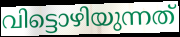
വിട്ടൊഴിയുന്നത്